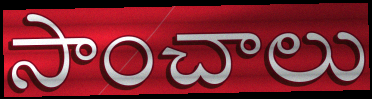
సాంచాలు